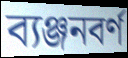
ব্যঞ্জনবর্ণ